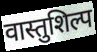
वास्तुशिल्प